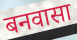
बनवासा